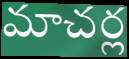
మాచర్ల